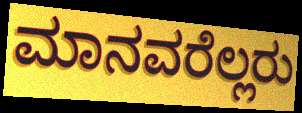
ಮಾನವರೆಲ್ಲರು